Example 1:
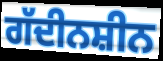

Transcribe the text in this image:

ਗੱਦੀਨਸ਼ੀਨ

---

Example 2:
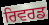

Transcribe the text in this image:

ਰਿਵਰਡ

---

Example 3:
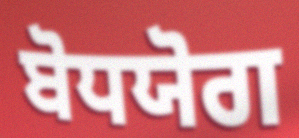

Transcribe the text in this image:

ਬੋਧਯੋਗ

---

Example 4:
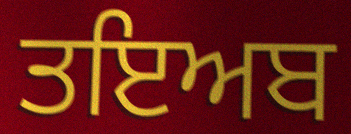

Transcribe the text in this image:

ਤਇਅਬ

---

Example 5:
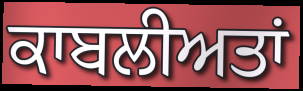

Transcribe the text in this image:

ਕਾਬਲੀਅਤਾਂ